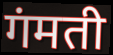
गंमती